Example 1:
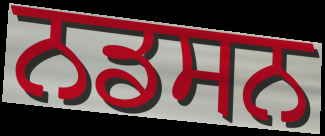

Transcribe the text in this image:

ਨਡਸਨ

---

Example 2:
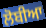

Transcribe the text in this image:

ਲੋਬੀਆ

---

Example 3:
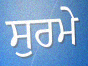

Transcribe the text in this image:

ਸੁਰਮੇ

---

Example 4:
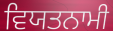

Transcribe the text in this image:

ਵਿਯਤਨਾਮੀ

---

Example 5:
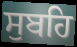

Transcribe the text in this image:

ਸੁਬਹਿ